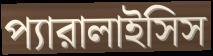
প্যারালাইসিস